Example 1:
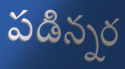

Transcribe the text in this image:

పడిన్నర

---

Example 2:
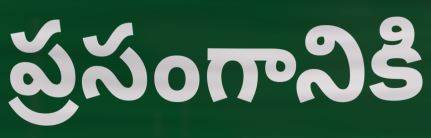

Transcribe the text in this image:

ప్రసంగానికి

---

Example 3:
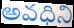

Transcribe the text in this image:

అవధిని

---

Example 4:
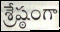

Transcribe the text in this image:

శ్రేష్ఠంగా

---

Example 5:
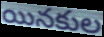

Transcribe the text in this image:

యినకుల